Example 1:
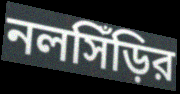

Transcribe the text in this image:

নলসিঁড়ির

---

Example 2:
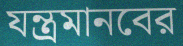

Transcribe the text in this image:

যন্ত্রমানবের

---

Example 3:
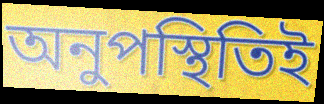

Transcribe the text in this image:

অনুপস্থিতিই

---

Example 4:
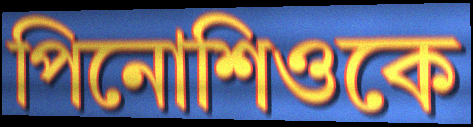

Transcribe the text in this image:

পিনোশিওকে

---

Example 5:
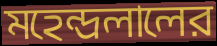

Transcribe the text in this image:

মহেন্দ্রলালের